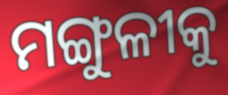
ମଙ୍ଗୁଳୀକୁ